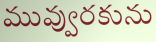
మువ్వురకును